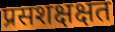
प्रसशक्षक्षत